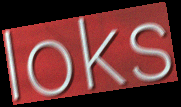
loks